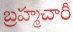
బ్రహ్మచారీ